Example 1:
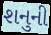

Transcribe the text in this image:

શનુની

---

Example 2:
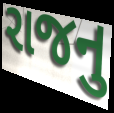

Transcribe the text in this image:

રાજનુ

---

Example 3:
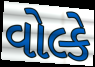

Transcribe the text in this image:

વોલ્કે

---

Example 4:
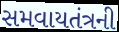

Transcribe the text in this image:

સમવાયતંત્રની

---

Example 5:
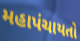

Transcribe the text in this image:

મહાપંચાયતો